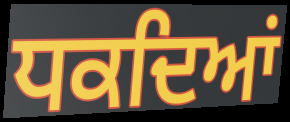
ਧਕਦਿਆਂ